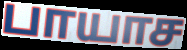
பாயாச